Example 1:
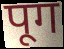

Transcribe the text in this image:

पूग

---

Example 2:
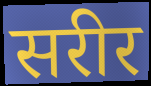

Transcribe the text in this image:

सरीर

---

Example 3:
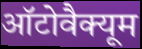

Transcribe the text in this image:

ऑटोवैक्यूम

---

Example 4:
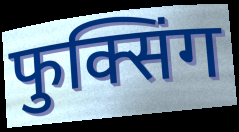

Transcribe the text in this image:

फुक्सिंग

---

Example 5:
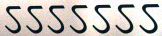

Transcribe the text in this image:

ऽऽऽऽऽऽऽ